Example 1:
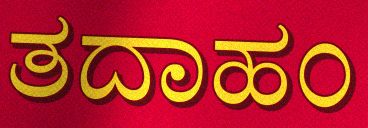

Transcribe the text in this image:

ತದಾಹಂ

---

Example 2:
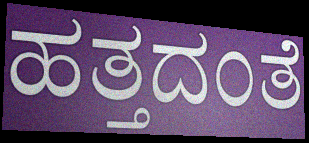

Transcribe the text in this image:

ಹತ್ತದಂತೆ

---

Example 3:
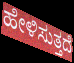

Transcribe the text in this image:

ಹೇಳಿಸುತ್ತದೆ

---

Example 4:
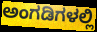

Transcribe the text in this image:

ಅಂಗಡಿಗಳಲ್ಲಿ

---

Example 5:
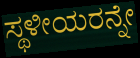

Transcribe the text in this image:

ಸ್ಥಳೀಯರನ್ನೇ